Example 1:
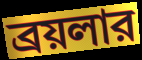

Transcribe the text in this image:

ব্রয়লার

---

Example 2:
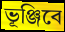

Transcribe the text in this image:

ভূঞ্জিবে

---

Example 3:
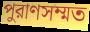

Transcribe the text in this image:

পুরাণসম্মত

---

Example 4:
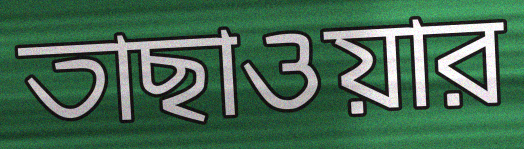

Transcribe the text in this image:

তাছাওয়ার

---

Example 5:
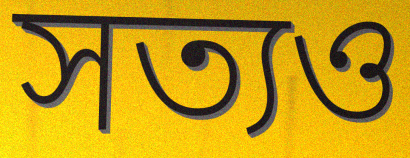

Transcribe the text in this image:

সত্যও